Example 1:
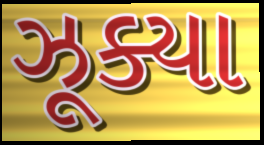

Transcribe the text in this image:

ઝૂક્યા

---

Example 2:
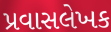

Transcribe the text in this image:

પ્રવાસલેખક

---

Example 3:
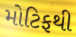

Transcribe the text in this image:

મોટિફથી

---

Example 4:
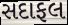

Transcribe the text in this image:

સદાફલ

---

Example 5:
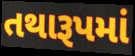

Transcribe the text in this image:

તથારૂપમાં